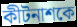
কীটনাশকে